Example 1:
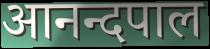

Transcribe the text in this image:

आनन्दपाल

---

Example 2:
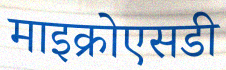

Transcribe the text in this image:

माइक्रोएसडी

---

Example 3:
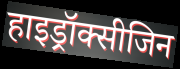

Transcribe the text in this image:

हाइड्रॉक्सीजिन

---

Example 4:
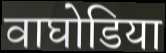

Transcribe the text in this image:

वाघोडिया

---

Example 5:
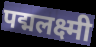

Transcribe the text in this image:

पद्मलक्ष्मी